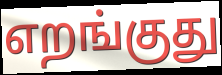
எறங்குது